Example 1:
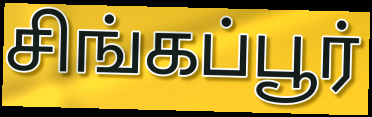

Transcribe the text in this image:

சிங்கப்பூர்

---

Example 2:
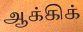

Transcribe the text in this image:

ஆக்கிக்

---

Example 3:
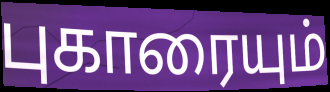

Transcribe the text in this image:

புகாரையும்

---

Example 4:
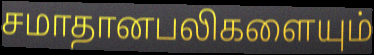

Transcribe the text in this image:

சமாதானபலிகளையும்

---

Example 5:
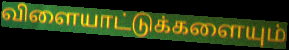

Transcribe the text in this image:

விளையாட்டுக்களையும்